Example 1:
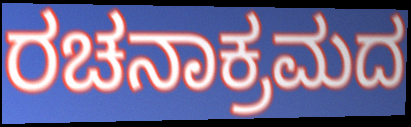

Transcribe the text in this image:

ರಚನಾಕ್ರಮದ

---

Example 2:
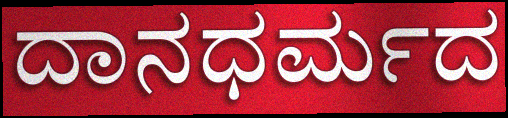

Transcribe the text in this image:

ದಾನಧರ್ಮದ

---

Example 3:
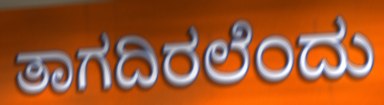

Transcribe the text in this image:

ತಾಗದಿರಲೆಂದು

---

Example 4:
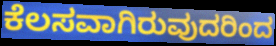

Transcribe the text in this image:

ಕೆಲಸವಾಗಿರುವುದರಿಂದ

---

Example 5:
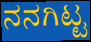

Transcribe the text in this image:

ನನಗಿಟ್ಟ